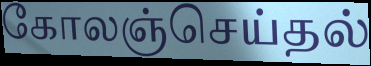
கோலஞ்செய்தல்